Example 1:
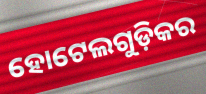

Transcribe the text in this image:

ହୋଟେଲଗୁଡ଼ିକର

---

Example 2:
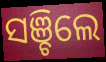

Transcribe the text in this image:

ସଞ୍ଚିଲେ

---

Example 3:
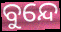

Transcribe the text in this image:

ବୁନ୍ଦେ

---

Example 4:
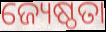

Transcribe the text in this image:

ଜ୍ୟେଷ୍ଠତା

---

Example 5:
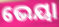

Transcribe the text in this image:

ଭେୟା